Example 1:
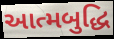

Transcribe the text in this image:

આત્મબુદ્ધિ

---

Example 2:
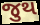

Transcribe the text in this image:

જુથ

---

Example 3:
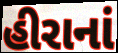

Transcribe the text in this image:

હીરાનાં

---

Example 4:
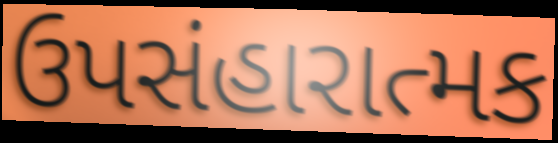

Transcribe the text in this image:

ઉપસંહારાત્મક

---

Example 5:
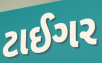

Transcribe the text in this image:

ટાઈગર